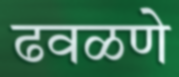
ढवळणे